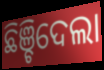
ଛିଞ୍ଚିଦେଲା